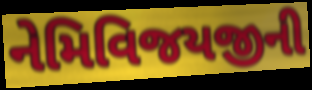
નેમિવિજયજીની